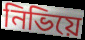
নিভিয়ে